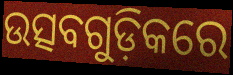
ଉତ୍ସବଗୁଡ଼ିକରେ